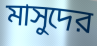
মাসুদের